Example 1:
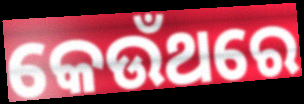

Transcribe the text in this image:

କେଉଁଥରେ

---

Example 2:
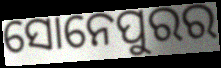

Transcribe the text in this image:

ସୋନେପୁରର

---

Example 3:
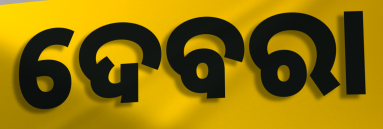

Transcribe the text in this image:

ଦେବରା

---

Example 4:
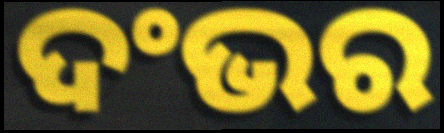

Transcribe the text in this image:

ଦଂଭର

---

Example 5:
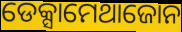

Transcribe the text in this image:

ଡେକ୍ସାମେଥାଜୋନ